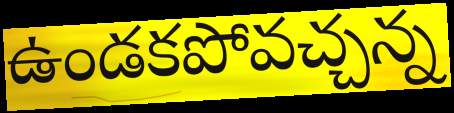
ఉండకపోవచ్చన్న